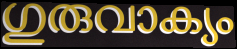
ഗുരുവാക്യം